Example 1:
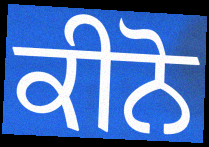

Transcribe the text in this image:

ਕੀਨੋ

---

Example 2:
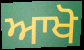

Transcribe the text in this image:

ਆਖੋ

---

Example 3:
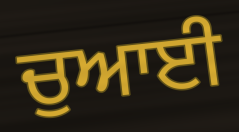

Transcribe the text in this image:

ਚੁਆਈ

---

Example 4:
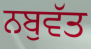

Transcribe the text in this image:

ਨਬੁਵੱਤ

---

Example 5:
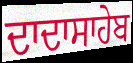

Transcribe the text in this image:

ਦਾਦਾਸਾਹੇਬ